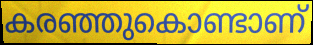
കരഞ്ഞുകൊണ്ടാണ്